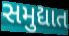
સમુદ્યાત